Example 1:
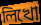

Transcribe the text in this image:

লিখো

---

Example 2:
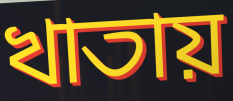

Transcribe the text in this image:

খাতায়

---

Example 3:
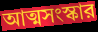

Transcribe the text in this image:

আত্মসংস্কার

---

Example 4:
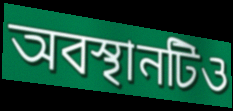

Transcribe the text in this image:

অবস্থানটিও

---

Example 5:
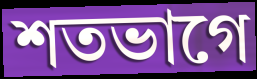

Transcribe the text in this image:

শতভাগে